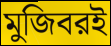
মুজিবরই